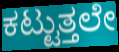
ಕಟ್ಟುತ್ತಲೇ